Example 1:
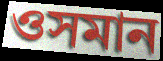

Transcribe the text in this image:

ওসমান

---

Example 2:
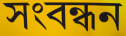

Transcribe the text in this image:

সংবন্ধন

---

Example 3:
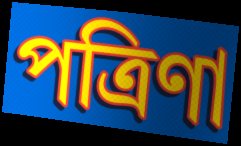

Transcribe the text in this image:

পত্রিণা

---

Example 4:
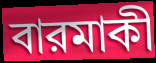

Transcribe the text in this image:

বারমাকী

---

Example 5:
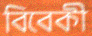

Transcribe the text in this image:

বিবেকী